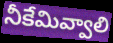
నీకేమివ్వాలి